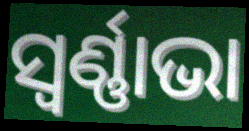
ସ୍ୱର୍ଣ୍ଣାଭା